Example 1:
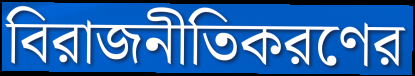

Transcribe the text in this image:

বিরাজনীতিকরণের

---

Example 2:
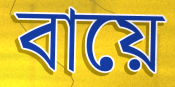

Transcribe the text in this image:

বায়ে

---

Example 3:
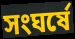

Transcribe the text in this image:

সংঘর্ষে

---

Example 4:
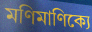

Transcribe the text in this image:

মণিমাণিক্যে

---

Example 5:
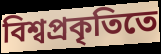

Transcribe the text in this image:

বিশ্বপ্রকৃতিতে